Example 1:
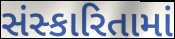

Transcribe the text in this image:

સંસ્કારિતામાં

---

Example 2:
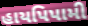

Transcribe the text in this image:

હાયપિપામી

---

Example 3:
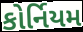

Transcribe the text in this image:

કોર્નિયમ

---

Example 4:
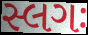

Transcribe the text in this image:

સ્લગઃ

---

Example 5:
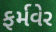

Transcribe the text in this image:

ફર્મવેર